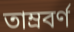
তাম্রবর্ণ